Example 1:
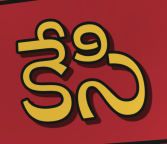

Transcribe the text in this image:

కేసి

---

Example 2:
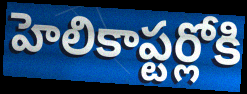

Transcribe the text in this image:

హెలికాప్టర్లోకి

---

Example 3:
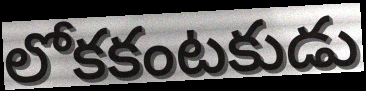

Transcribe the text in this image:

లోకకంటకుడు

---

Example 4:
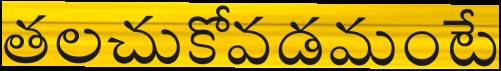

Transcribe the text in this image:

తలచుకోవడమంటే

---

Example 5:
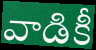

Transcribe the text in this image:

వాడికీ